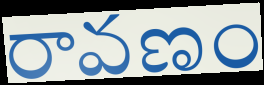
రావణం